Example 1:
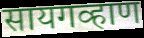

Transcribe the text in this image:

सायगव्हाण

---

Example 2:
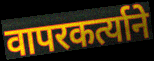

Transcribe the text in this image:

वापरकर्त्याने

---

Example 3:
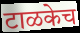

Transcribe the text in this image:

टाळकेच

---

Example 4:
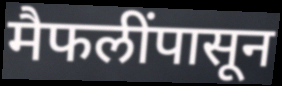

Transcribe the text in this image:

मैफलींपासून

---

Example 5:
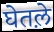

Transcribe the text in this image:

घेतल़े